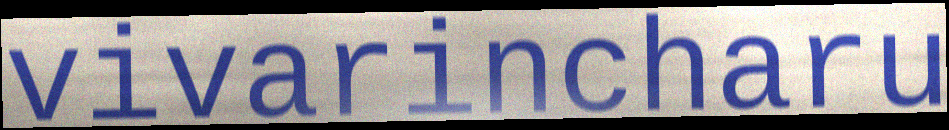
vivarincharu